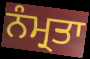
ਨੰਮ੍ਰਤਾ